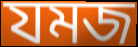
যমজ